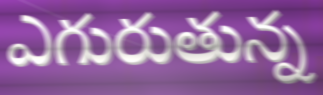
ఎగురుతున్న